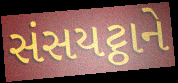
સંસયટ્ઠાને